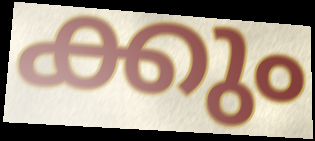
ക്കും